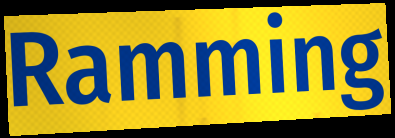
Ramming